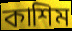
কাশিম